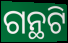
ଗନ୍ଥଟି